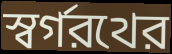
স্বর্গরথের